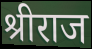
श्रीराज